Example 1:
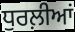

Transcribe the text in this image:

ਧੁਰਲ਼ੀਆਂ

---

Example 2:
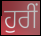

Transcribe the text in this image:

ਹੁਰੀਂ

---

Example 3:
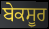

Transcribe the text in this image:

ਬੇਕਸੂਰ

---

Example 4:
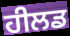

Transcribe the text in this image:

ਹੀਲਡ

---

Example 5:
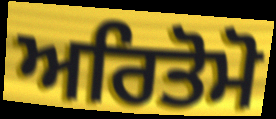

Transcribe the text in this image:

ਅਰਿਤੋਮੋ